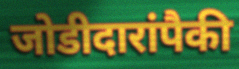
जोडीदारांपैकी